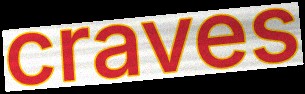
craves